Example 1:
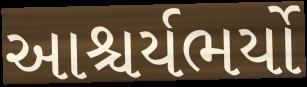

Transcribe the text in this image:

આશ્ચર્યભર્યો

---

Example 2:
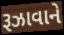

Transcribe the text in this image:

રૂઝાવાને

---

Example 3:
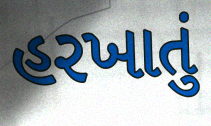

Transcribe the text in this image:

હરખાતું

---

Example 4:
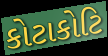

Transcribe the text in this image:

કોટાકોટિ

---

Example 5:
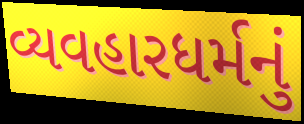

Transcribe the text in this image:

વ્યવહારધર્મનું